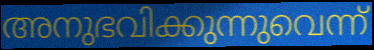
അനുഭവിക്കുന്നുവെന്ന്